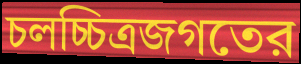
চলচ্চিত্রজগতের